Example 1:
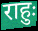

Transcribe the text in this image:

राहुः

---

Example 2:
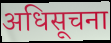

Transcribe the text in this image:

अधिसूचना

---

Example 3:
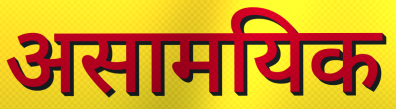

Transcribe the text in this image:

असामयिक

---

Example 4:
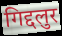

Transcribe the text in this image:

गिद्दलुर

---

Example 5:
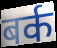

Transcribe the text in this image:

बर्क